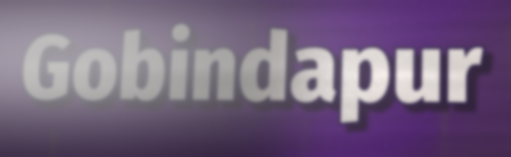
Gobindapur